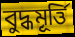
বুদ্ধমূর্ত্তি